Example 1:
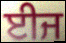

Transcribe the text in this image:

ਈਜ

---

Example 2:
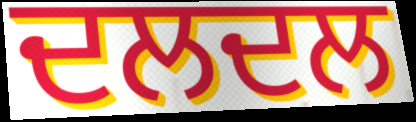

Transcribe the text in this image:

ਦਲਦਲ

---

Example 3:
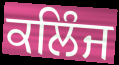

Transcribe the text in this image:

ਕਲਿੰਜ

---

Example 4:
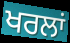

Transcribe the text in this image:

ਖਰਲਾਂ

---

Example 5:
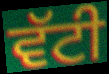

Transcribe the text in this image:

ਵੱਟੀ